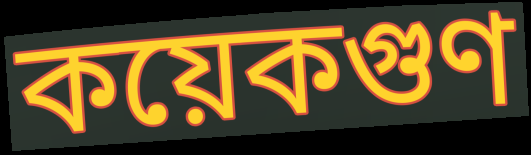
কয়েকগুণ